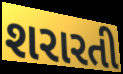
શરારતી